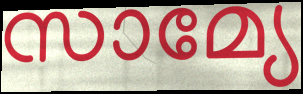
സാമ്യേ